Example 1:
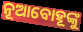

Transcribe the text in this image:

ନୂଆବୋହୂଙ୍କୁ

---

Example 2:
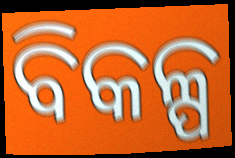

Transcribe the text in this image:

ବିକଳ୍ପ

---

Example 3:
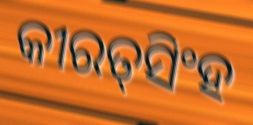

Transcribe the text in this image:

କୀରତ୍‍ସିଂହ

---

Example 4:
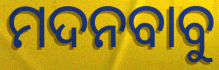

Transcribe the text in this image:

ମଦନବାବୁ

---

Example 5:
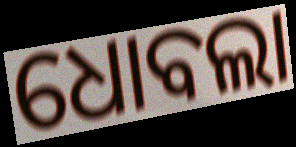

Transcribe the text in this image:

ଧୋବଲା